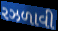
રઝળાવી